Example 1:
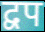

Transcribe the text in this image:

द्वप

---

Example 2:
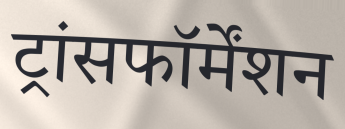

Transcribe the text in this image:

ट्रांसफॉर्मेंशन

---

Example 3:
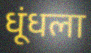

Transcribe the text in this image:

धूंधला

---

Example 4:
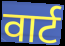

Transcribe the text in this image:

वार्ट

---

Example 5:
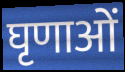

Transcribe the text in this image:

घृणाओं